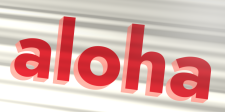
aloha